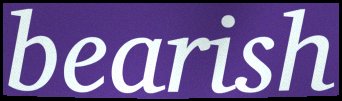
bearish